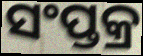
ସଂପ୍ତକ୍ର